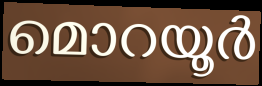
മൊറയൂർ